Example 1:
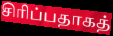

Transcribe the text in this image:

சிரிப்பதாகத்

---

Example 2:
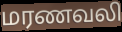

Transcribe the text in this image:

மரணவலி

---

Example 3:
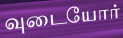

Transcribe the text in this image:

வுடையோர்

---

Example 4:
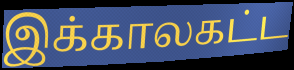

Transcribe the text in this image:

இக்காலகட்ட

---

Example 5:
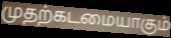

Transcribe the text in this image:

முதற்கடமையாகும்